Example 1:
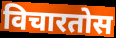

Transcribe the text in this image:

विचारतोस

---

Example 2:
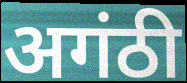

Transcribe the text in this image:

अगंठी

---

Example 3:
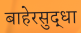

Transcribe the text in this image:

बाहेरसुद्धा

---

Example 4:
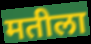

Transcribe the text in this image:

मतीला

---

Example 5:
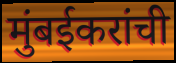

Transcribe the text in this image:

मुंबईकरांची